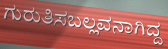
ಗುರುತಿಸಬಲ್ಲವನಾಗಿದ್ದ